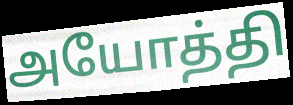
அயோத்தி